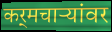
कर्मचाऱ्यांवर